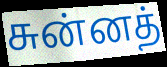
சுன்னத்